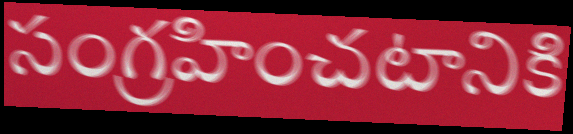
సంగ్రహించటానికి